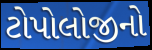
ટોપોલોજીનો